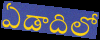
ఏడాదిలో